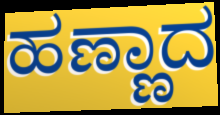
ಹಣ್ಣಾದ